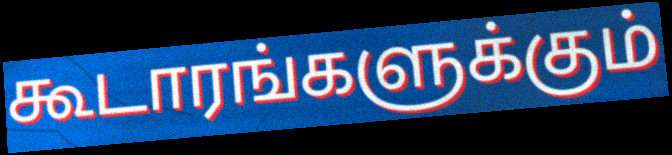
கூடாரங்களுக்கும்